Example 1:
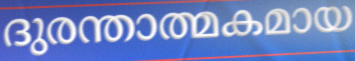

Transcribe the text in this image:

ദുരന്താത്മകമായ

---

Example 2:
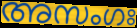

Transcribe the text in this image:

അസംഗഃ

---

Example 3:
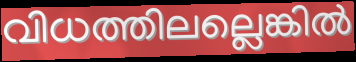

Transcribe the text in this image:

വിധത്തിലല്ലെങ്കിൽ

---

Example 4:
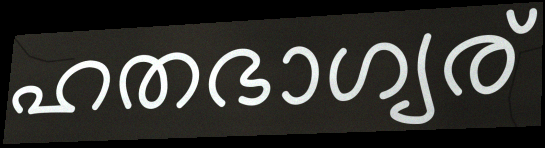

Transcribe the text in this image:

ഹതഭാഗ്യര്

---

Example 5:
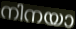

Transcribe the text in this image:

നിനയാ